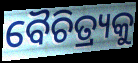
ବୈଚିତ୍ର୍ୟକୁ